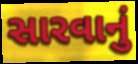
સારવાનું